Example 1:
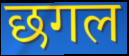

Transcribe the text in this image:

छगल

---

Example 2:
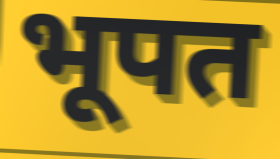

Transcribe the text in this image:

भूपत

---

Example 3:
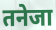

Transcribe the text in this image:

तनेजा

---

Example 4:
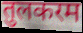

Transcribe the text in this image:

तुलकरम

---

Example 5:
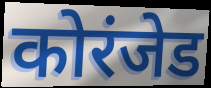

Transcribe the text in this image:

कोरंजेड